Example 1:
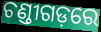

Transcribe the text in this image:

ଚଣ୍ଡୀଗଡ଼ରେ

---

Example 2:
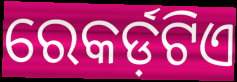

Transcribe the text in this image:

ରେକର୍ଡ଼ଟିଏ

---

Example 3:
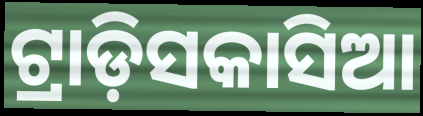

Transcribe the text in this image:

ଟ୍ରାଡ଼ିସକାସିଆ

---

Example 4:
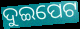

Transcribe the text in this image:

ଦୁଇପେଟ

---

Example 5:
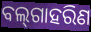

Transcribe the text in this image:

ବଲ୍‌ଗାହରିଣ